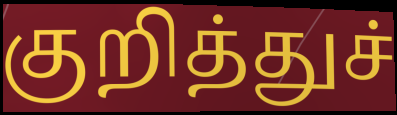
குறித்துச்